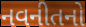
નવનીતનો